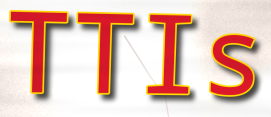
TTIs